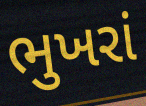
ભુખરાં